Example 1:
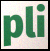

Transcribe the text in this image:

pli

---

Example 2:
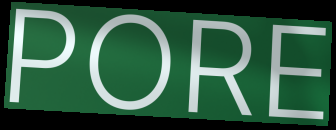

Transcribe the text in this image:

PORE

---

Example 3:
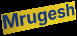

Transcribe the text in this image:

Mrugesh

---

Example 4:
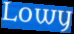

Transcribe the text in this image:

Lowy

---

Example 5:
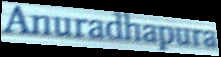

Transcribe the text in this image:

Anuradhapura